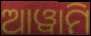
ଆୱାମି